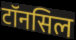
टॉनसिल